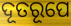
ଦୂତରୂପେ